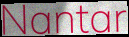
Nantar